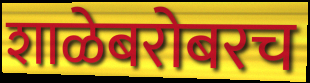
शाळेबरोबरच